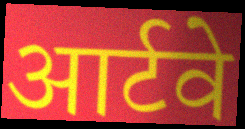
आर्टवे